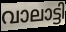
വാലാട്ടി